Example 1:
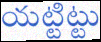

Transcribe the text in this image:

యట్టిట్టు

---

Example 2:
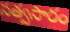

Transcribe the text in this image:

సత్వసారం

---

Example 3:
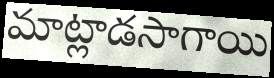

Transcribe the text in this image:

మాట్లాడసాగాయి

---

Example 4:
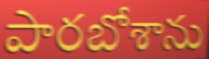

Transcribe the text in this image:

పారబోశాను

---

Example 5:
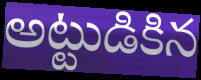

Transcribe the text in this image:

అట్టుడికిన